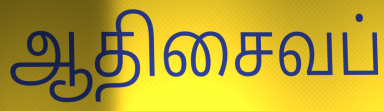
ஆதிசைவப்